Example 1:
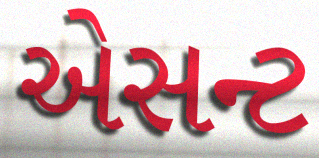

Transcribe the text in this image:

એસન્ટ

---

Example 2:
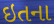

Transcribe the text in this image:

ઇતના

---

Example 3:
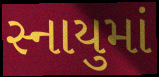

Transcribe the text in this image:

સ્નાયુમાં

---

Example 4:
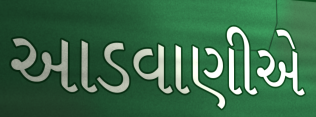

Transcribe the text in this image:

આડવાણીએ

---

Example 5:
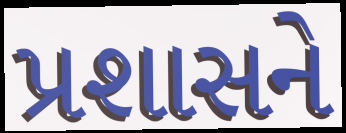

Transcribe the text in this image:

પ્રશાસને